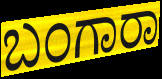
ಬಂಗಾರಾ